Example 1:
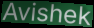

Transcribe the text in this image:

Avishek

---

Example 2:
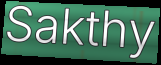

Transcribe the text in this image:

Sakthy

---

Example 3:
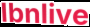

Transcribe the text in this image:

Ibnlive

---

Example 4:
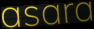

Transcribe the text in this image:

asara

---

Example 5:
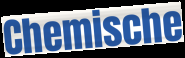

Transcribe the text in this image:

Chemische